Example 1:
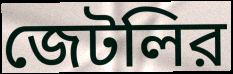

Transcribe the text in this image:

জেটলির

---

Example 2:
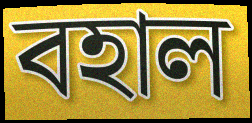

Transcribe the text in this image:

বহাল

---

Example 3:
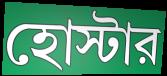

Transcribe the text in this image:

হোস্টার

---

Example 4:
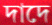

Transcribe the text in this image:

দাদে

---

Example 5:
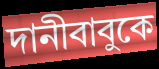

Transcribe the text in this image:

দানীবাবুকে